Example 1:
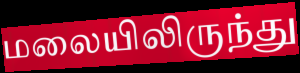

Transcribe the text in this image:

மலையிலிருந்து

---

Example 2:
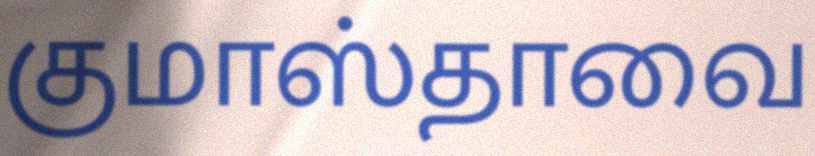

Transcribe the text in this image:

குமாஸ்தாவை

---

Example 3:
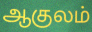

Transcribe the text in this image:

ஆகுலம்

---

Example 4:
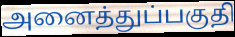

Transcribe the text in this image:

அனைத்துப்பகுதி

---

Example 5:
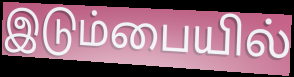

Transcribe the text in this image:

இடும்பையில்